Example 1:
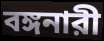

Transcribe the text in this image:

বঙ্গনারী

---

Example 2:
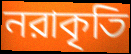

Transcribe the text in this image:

নরাকৃতি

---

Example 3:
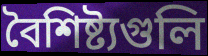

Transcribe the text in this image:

বৈশিষ্ট্যগুলি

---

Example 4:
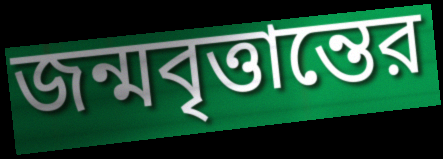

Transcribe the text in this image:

জন্মবৃত্তান্তের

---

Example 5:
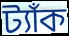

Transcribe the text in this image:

ট্যাঁক